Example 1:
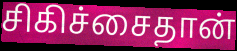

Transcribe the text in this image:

சிகிச்சைதான்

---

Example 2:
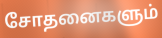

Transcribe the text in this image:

சோதனைகளும்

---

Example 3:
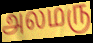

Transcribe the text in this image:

அலமரு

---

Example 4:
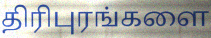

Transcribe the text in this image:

திரிபுரங்களை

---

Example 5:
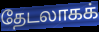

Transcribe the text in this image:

தேடலாகக்